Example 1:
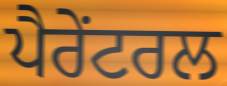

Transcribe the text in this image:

ਪੈਰੇਂਟਰਲ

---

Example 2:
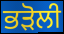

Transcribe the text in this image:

ਭੜੋਲੀ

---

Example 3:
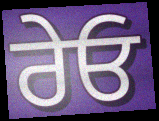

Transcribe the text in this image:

ਰੇਓ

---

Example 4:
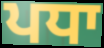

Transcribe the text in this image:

ਪਧਾ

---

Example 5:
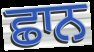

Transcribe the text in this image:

ਛਾਨ